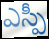
ఎస్పీ